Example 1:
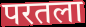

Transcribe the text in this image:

परतला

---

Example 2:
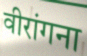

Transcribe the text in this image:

वीरांगना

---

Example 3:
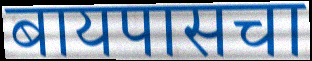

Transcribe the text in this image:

बायपासचा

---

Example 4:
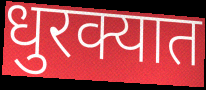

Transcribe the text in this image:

धुरक्यात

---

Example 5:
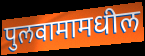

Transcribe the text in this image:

पुलवामामधील